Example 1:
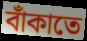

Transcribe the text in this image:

বাঁকাতে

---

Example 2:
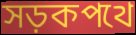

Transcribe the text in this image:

সড়কপথে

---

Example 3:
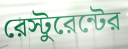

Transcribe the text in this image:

রেস্টুরেন্টের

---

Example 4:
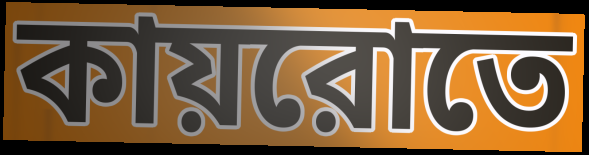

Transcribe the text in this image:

কায়রোতে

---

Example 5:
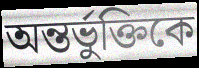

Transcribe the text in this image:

অন্তর্ভুক্তিকে